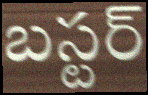
బస్టర్